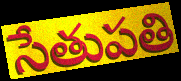
సేతుపతి